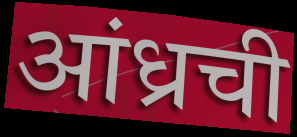
आंध्रची